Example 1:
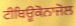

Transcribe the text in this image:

ਟੀਬਿਊਕੋਨਾਜੋਲ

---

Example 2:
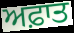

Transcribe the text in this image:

ਅਫ਼ਾਤ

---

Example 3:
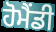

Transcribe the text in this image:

ਹੋਮੈਂਡੀ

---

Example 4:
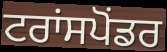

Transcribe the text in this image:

ਟਰਾਂਸਪੋਂਡਰ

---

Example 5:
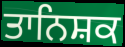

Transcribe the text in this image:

ਤਾਨਿਸ਼ਕ